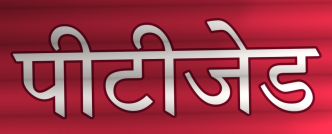
पीटीजेड